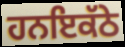
ਹਨਇਕੱਠੇ